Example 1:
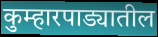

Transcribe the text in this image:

कुम्हारपाड्यातील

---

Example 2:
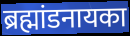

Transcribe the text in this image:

ब्रह्मांडनायका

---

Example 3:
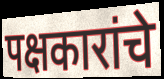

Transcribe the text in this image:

पक्षकारांचे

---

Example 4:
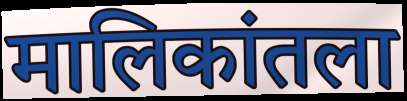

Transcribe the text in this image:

मालिकांतला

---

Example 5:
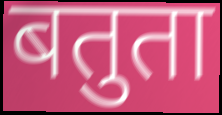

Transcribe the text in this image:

बतुता